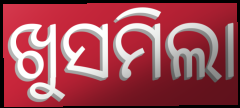
ଖୁସମିଲା